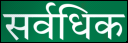
सर्वधिक